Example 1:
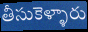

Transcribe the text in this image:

తీసుకెళ్ళారు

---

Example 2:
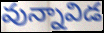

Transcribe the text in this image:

వున్నావిడ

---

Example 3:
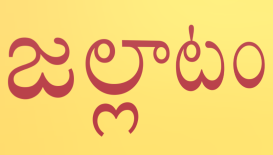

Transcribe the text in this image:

జల్లాటం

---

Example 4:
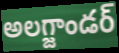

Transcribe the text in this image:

అలగ్జాండర్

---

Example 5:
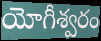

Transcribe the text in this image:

యోగీశ్వరం